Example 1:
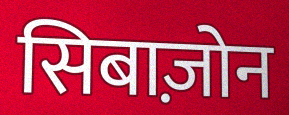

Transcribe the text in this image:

सिबाज़ोन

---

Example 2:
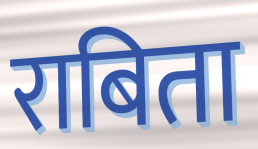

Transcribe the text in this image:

राबिता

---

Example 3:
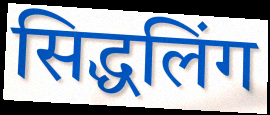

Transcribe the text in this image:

सिद्धलिंग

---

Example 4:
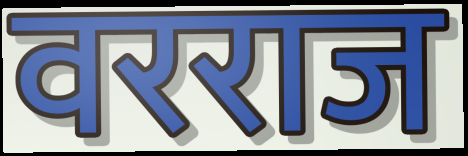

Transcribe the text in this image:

वरराज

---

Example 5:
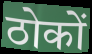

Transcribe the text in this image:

ठोकों